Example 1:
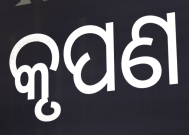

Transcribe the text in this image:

କୃପଣ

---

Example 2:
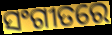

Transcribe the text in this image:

ସଂଗୀତରେ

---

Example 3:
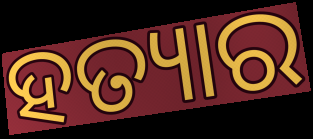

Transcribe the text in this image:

ହତ୍ୟାର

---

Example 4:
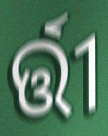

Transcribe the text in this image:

ର୍ତ୍ତୀ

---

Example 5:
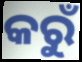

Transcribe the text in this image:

କରୁଁ